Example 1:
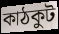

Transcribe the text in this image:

কাঠকুট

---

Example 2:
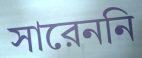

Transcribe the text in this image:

সারেননি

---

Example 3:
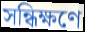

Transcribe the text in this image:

সন্ধিক্ষণে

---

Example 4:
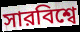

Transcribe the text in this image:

সারবিশ্বে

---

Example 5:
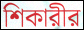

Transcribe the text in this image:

শিকারীর